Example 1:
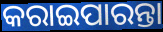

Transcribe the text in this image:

କରାଇପାରନ୍ତା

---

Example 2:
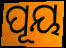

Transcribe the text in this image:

ପୂୟ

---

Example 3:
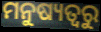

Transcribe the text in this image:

ମନୁଷ୍ୟତ୍ୱରୁ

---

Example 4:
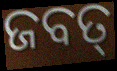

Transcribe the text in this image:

ଜବତ୍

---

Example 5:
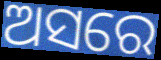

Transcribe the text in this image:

ଅସରେ